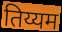
तिय्यम